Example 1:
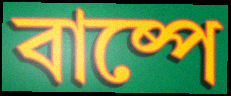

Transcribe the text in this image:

বাষ্পে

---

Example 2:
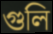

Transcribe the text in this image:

গুলি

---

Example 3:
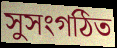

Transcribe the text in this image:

সুসংগঠিত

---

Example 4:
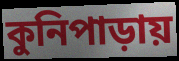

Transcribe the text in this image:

কুনিপাড়ায়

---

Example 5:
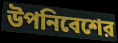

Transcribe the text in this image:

উপনিবেশের